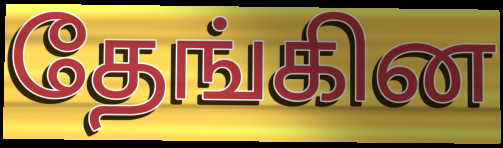
தேங்கின